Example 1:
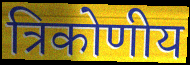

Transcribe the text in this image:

त्रिकोणीय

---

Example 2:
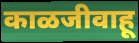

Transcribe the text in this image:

काळजीवाहू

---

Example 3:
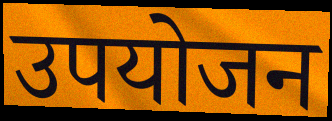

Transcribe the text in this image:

उपयोजन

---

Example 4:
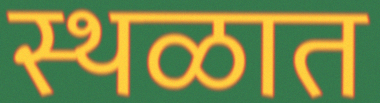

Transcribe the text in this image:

स्थळात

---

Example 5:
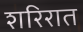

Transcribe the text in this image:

शरिरात